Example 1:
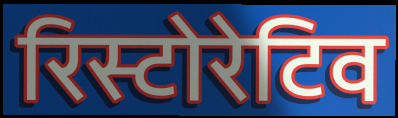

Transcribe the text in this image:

रिस्टोरेटिव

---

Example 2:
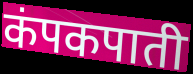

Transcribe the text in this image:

कंपकपाती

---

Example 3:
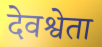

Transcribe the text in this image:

देवश्वेता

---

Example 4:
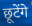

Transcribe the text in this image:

छूटेंगे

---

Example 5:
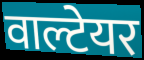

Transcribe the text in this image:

वाल्टेयर